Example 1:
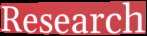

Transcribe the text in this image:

Research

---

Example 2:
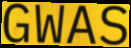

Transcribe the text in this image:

GWAS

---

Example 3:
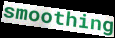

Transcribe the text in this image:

smoothing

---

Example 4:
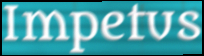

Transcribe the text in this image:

Impetus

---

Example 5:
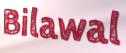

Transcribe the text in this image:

Bilawal